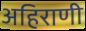
अहिराणी